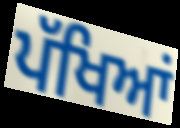
ਪੱਖਿਆਂ